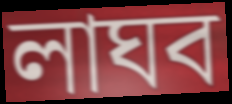
লাঘব